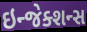
ઇન્જેક્શન્સ